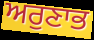
ਅਰੁਣਾਭ